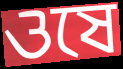
ওষে